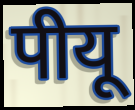
पीयू